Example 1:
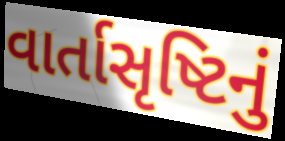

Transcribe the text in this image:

વાર્તાસૃષ્ટિનું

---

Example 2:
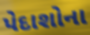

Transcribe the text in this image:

પેદાશોના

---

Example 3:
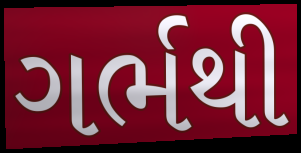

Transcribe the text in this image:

ગર્ભથી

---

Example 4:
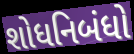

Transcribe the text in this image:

શોધનિબંધો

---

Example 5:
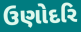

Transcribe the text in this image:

ઉણોદરિ